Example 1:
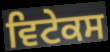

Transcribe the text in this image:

ਵਿਟੇਕਸ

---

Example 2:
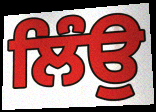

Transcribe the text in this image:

ਲਿੰਉ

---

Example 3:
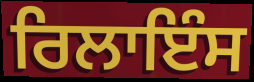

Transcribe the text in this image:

ਰਿਲਾਇੰਸ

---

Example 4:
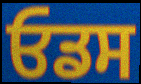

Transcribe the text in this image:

ਓਡਸ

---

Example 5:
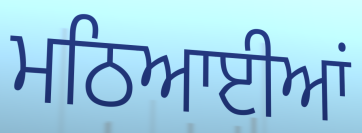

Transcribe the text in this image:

ਮਠਿਆਈਆਂ